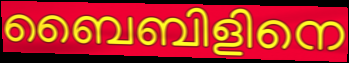
ബൈബിളിനെ